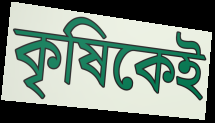
কৃষিকেই